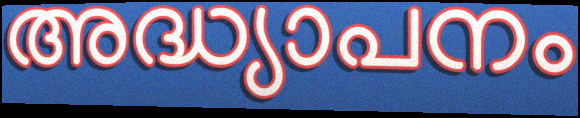
അദ്ധ്യാപനം